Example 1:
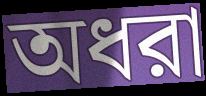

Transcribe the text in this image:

অধরা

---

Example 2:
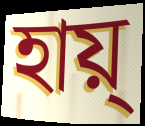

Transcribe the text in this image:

হায়্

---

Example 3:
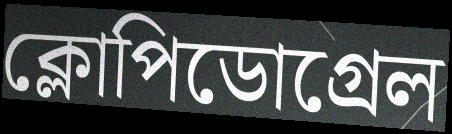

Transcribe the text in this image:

ক্লোপিডোগ্রেল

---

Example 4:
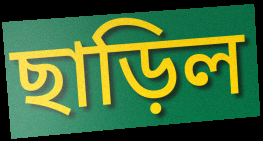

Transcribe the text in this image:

ছাড়িল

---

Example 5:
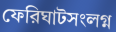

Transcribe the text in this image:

ফেরিঘাটসংলগ্ন